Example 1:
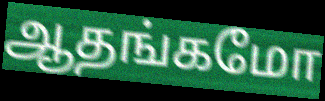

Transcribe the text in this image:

ஆதங்கமோ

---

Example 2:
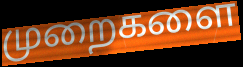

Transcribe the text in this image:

முறைகளை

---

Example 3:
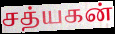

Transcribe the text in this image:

சத்யகன்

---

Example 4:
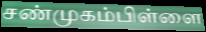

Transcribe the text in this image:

சண்முகம்பிள்ளை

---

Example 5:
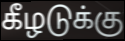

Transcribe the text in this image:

கீழடுக்கு